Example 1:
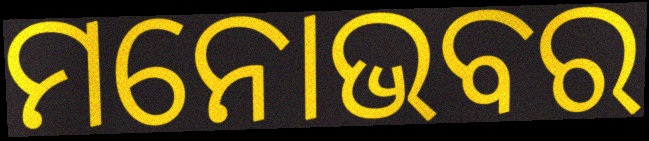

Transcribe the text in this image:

ମନୋଭବର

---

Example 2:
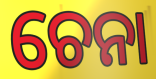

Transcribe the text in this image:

ଚେନା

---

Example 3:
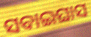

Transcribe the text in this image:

ସବାଇଘାସ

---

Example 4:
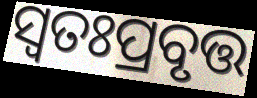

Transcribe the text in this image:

ସ୍ୱତଃପ୍ରବୃତ୍ତ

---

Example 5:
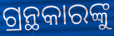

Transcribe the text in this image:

ଗ୍ରନ୍ଥକାରଙ୍କୁ